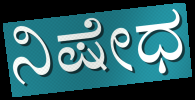
ನಿಷೇಧ